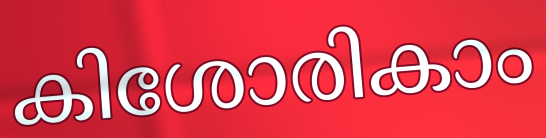
കിശോരികാം